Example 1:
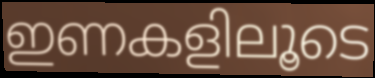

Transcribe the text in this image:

ഇണകളിലൂടെ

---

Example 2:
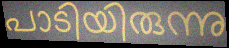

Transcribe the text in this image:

പാടിയിരുന്നു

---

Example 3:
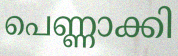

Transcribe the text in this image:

പെണ്ണാക്കി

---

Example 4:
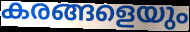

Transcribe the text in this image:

കരങ്ങളെയും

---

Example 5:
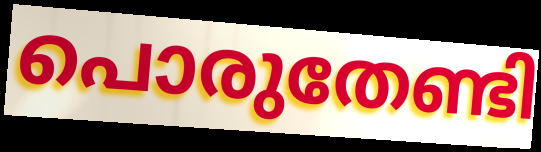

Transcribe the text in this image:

പൊരുതേണ്ടി